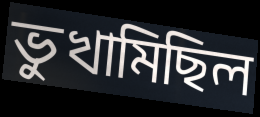
ভুখামিছিল